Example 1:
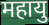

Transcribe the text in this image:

महायु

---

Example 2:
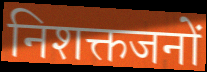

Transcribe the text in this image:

निशक्तजनों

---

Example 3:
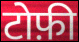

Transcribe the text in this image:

टोफ़ी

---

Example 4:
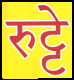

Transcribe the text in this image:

रुट्टे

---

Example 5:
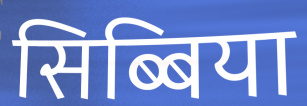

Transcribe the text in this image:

सिब्बिया